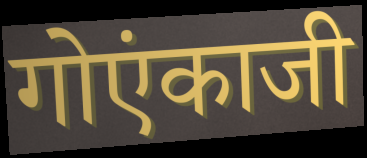
गोएंकाजी